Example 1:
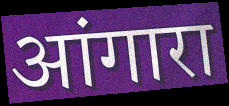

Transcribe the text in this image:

आंगारा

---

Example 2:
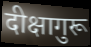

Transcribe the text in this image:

दीक्षागुरू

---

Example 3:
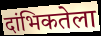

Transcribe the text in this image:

दांभिकतेला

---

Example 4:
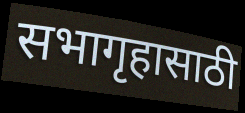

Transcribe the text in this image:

सभागृहासाठी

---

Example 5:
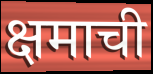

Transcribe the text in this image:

क्षमाची